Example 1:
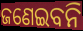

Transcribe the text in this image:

ଜଣେଇବନି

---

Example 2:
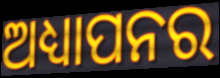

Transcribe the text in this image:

ଅଧ୍ୟାପନର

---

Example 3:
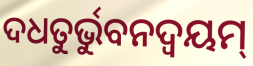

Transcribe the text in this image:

ଦଧତୁର୍ଭୁବନଦ୍ଵୟମ୍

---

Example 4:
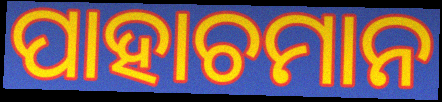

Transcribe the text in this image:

ପାହାଚମାନ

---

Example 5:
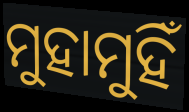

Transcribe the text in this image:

ମୁହାମୁହିଁ